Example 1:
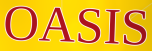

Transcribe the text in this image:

OASIS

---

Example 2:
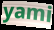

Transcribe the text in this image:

yami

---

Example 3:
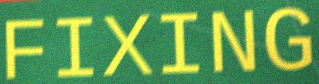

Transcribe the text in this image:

FIXING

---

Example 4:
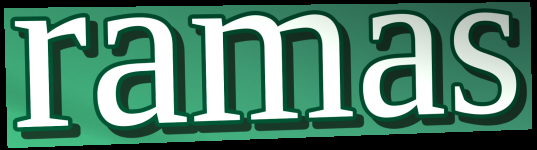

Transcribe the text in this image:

ramas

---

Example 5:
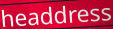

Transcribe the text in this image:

headdress